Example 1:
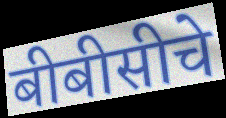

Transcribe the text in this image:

बीबीसीचे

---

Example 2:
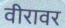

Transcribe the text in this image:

वीरावर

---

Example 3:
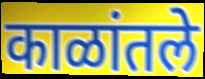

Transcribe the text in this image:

काळांतले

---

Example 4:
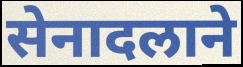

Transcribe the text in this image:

सेनादलाने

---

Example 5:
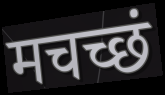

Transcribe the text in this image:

मचच्छं